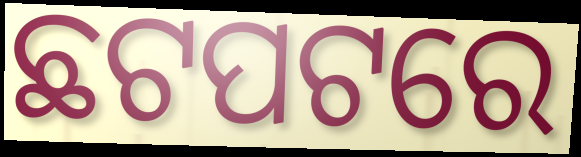
ଛଟପଟରେ